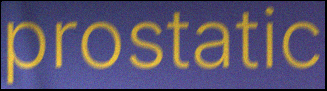
prostatic